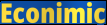
Econimic